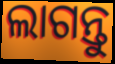
ଲାଗନ୍ତୁ